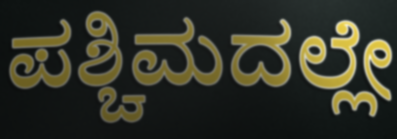
ಪಶ್ಚಿಮದಲ್ಲೇ